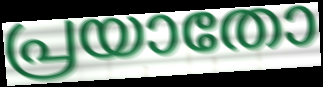
പ്രയാതോ